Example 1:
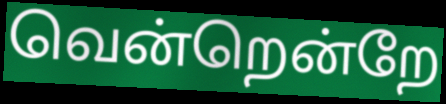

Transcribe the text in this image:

வென்றென்றே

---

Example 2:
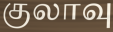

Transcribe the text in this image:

குலாவு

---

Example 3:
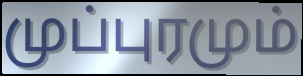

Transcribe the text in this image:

முப்புரமும்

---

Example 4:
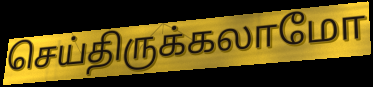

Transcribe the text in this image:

செய்திருக்கலாமோ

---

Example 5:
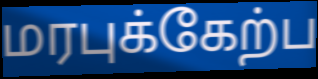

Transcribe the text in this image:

மரபுக்கேற்ப